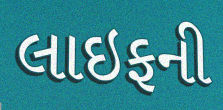
લાઇફની